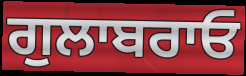
ਗੁਲਾਬਰਾਓ